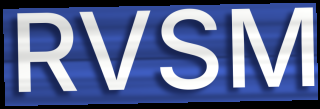
RVSM